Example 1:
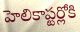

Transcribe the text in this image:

హెలికాప్టర్లోకి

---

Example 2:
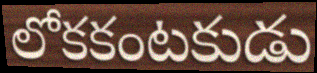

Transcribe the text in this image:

లోకకంటకుడు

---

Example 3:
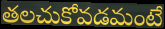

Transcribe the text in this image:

తలచుకోవడమంటే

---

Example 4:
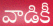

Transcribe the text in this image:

వాడికీ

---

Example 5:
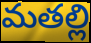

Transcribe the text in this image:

మతల్లి